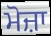
ਮੋਜ਼ਾ